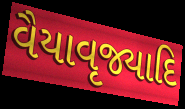
વૈયાવૃજ્યાદિ